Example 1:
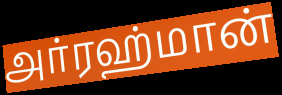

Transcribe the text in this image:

அர்ரஹ்மான்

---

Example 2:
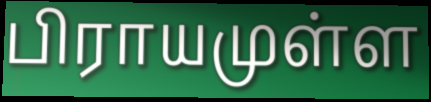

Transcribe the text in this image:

பிராயமுள்ள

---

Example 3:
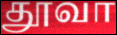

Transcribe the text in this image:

தூவா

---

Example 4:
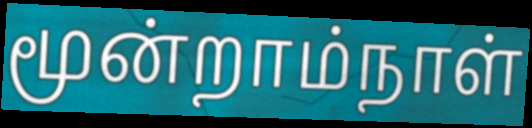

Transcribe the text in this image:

மூன்றாம்நாள்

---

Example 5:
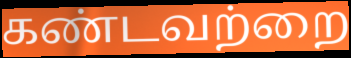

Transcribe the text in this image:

கண்டவற்றை